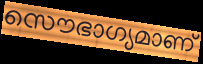
സൌഭാഗ്യമാണ്